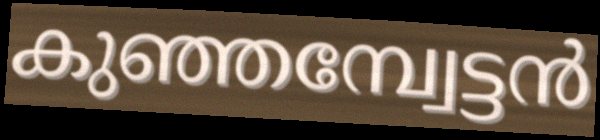
കുഞ്ഞമ്പ്വേട്ടൻ